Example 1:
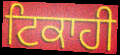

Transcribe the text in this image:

ਟਿਕਾਹੀ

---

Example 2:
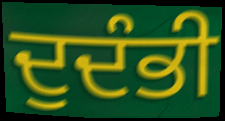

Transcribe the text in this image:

ਦੁਦੰਭੀ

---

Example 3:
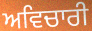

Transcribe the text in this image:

ਅਵਿਚਾਰੀ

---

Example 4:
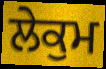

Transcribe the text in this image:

ਲੇਕੁਮ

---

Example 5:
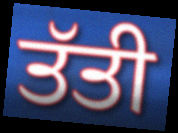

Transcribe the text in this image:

ਤੱਤੀ